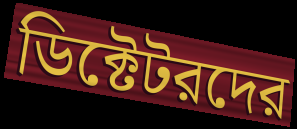
ডিক্টেটরদের